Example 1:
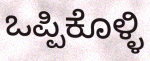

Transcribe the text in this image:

ಒಪ್ಪಿಕೊಳ್ಳಿ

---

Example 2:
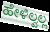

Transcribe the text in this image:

ಹೇಳಿಲ್ವಲ್ಲ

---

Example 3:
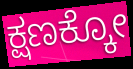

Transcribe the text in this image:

ಕ್ಷಣಕ್ಕೋ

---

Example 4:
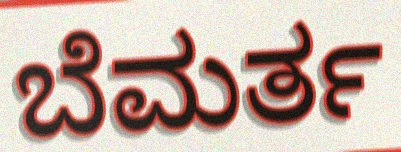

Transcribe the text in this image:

ಬೆಮರ್ತ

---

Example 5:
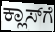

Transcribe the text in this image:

ಕ್ಲಾಸ್‍ಗೆ